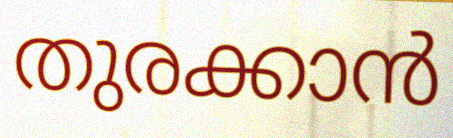
തുരക്കാൻ